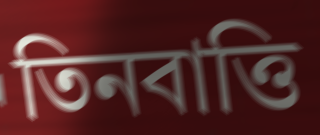
তিনবাত্তি